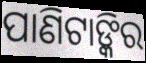
ପାଣିଟାଙ୍କିର